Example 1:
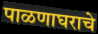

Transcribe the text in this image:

पाळणाघराचे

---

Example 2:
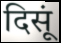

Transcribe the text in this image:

दिसूं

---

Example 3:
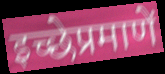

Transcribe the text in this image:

इच्छेप्रमाणें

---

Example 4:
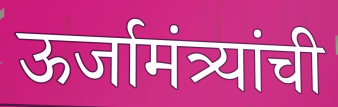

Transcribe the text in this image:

ऊर्जामंत्र्यांची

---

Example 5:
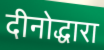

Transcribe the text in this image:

दीनोद्धारा